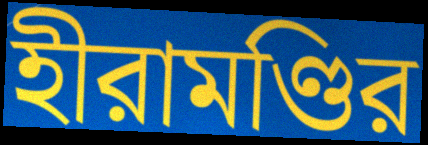
হীরামণ্ডির